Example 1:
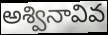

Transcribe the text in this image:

అశ్వినావివ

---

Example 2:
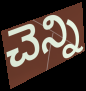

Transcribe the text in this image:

చెన్ని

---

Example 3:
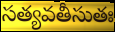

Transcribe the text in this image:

సత్యవతీసుతః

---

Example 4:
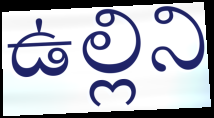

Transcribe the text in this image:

ఉల్లిని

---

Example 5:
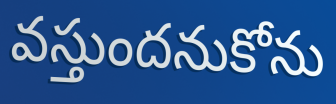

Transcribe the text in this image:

వస్తుందనుకోను